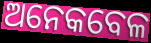
ଅନେକବେଳ